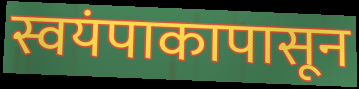
स्वयंपाकापासून